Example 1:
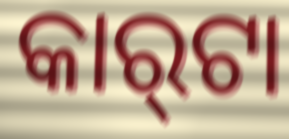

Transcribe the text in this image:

କାର୍‍ଟା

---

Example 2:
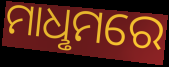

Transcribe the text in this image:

ମାଧୢମରେ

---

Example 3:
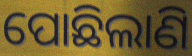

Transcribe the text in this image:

ପୋଛିଲାଣି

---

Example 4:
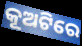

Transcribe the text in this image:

କୂଅଟିରେ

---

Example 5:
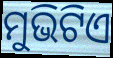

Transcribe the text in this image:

ମୁଭିଟିଏ